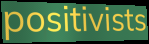
positivists